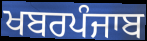
ਖਬਰਪੰਜਾਬ